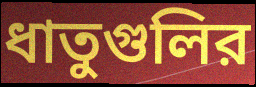
ধাতুগুলির